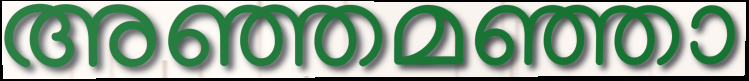
അഞ്ഞമഞ്ഞാ